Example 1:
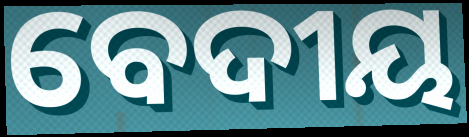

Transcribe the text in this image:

ବେଦୀୟ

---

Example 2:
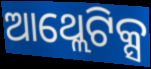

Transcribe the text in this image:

ଆଥ୍ଲେଟିକ୍ସ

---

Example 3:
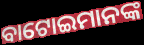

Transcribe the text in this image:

ବାଟୋଇମାନଙ୍କ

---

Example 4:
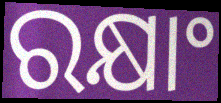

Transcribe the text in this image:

ରକ୍ଷାଂ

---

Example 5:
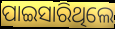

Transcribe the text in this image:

ପାଇସାରିଥିଲେ